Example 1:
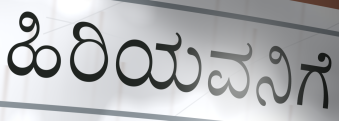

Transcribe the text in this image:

ಹಿರಿಯವನಿಗೆ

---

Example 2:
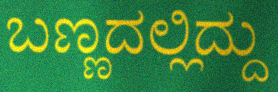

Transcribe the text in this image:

ಬಣ್ಣದಲ್ಲಿದ್ದು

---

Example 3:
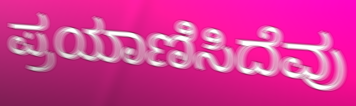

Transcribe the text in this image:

ಪ್ರಯಾಣಿಸಿದೆವು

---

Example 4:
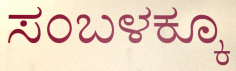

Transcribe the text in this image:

ಸಂಬಳಕ್ಕೂ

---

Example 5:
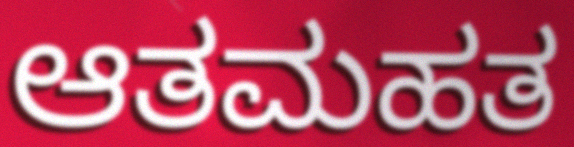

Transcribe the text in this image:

ಆತಮಹತ